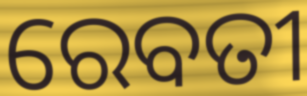
ରେବତୀ